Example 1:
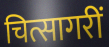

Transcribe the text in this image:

चित्सागरीं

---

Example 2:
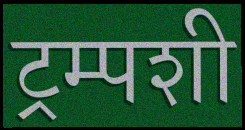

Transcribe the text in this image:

ट्रम्पशी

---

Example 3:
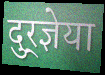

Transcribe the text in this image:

दुर्ज्ञेया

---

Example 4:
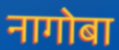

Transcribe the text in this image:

नागोबा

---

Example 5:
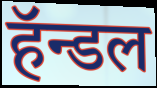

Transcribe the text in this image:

हॅन्डल